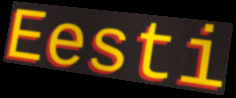
Eesti